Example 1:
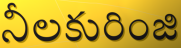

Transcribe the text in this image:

నీలకురింజి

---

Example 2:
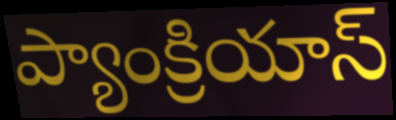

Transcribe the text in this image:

ప్యాంక్రియాస్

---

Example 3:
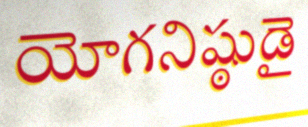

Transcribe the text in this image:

యోగనిష్ఠుడై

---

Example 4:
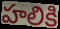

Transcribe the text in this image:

హలికి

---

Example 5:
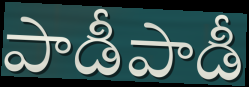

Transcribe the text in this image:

పాడీపాడీ